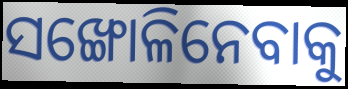
ସଙ୍ଖୋଳିନେବାକୁ